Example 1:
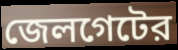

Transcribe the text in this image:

জেলগেটের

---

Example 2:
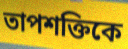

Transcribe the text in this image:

তাপশক্তিকে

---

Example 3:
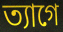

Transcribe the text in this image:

ত্যাগে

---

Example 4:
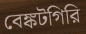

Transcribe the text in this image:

বেঙ্কটগিরি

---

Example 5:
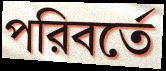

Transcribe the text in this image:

পরিবর্তে